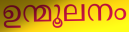
ഉന്മൂലനം